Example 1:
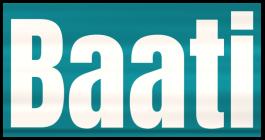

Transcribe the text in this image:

Baati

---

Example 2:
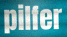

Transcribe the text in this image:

pilfer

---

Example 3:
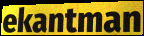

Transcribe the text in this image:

ekantman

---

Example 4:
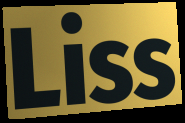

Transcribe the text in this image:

Liss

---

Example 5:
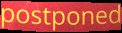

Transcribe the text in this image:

postponed